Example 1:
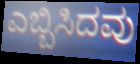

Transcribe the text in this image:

ಎಬ್ಬಿಸಿದವು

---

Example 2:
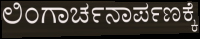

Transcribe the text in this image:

ಲಿಂಗಾರ್ಚನಾರ್ಪಣಕ್ಕೆ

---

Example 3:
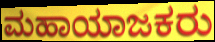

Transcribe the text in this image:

ಮಹಾಯಾಜಕರು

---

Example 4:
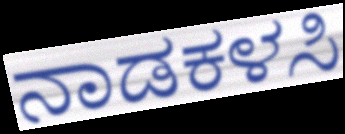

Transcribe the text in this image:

ನಾಡಕಳಸಿ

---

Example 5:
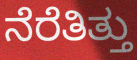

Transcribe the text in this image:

ನೆರೆತಿತ್ತು